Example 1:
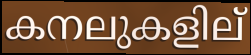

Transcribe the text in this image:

കനലുകളില്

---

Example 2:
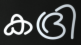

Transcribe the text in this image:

കദ്രി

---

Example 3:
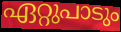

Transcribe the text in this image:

ഏറ്റുപാടും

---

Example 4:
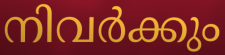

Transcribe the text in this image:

നിവർക്കും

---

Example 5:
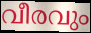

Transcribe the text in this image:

വീരവും